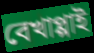
বেখাপ্পাই